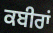
ਕਬੀਰਾਂ